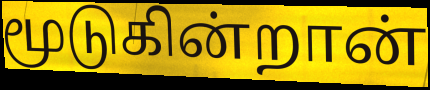
மூடுகின்றான்